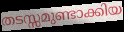
തടസ്സമുണ്ടാക്കിയ